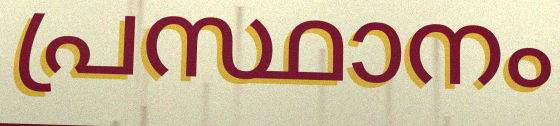
പ്രസ്ഥാനം